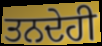
ਤਨਦੇਹੀ